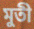
মুতী